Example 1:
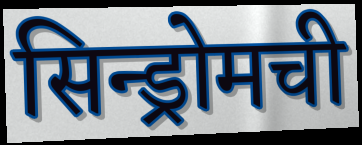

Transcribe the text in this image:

सिन्ड्रोमची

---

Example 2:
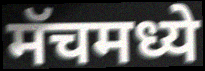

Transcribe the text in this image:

मॅचमध्ये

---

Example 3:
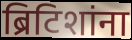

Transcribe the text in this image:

ब्रिटिशांना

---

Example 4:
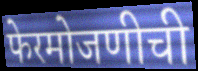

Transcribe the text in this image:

फेरमोजणीची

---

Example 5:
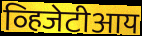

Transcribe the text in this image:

व्हिजेटीआय